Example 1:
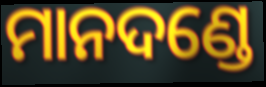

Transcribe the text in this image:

ମାନଦଣ୍ଡେ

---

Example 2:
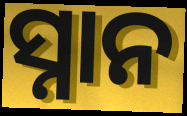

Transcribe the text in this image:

ସ୍ନାନ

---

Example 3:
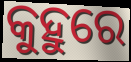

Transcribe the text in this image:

କୁହୁରେ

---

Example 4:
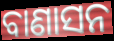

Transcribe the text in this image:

ବାଣାସନ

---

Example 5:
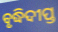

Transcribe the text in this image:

ବୃଦ୍ଧିଦୀପ୍ତ